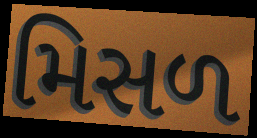
મિસળ